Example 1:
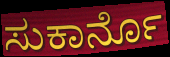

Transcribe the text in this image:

ಸುಕಾರ್ನೊ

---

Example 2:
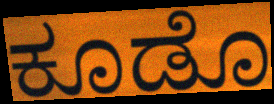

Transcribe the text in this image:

ಕೂಡೊ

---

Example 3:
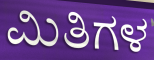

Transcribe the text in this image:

ಮಿತಿಗಳ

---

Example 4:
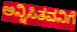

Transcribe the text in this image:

ಅನ್ನಿಸಿತವನಿಗೆ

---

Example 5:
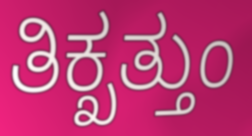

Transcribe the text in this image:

ತಿಕ್ಖತ್ತುಂ